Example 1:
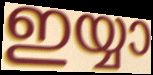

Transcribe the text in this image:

ഇയ്യാ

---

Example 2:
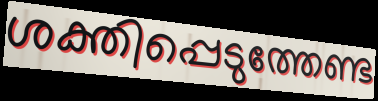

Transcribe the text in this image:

ശക്തിപ്പെടുത്തേണ്ട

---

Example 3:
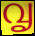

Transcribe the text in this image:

വൃ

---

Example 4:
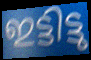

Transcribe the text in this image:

ഇട്ടിട്ടു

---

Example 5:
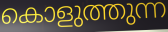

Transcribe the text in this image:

കൊളുത്തുന്ന